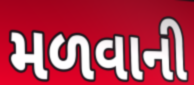
મળવાની